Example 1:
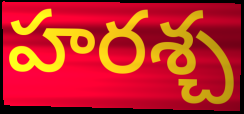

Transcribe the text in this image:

హరశ్చ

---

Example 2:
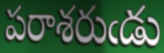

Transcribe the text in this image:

పరాశరుఁడు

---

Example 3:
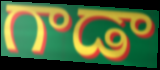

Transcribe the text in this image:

గాడా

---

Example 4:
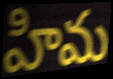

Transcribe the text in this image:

హిమ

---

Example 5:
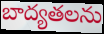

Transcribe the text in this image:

బాద్యతలను